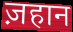
ज़हान